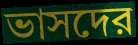
ভাসদের